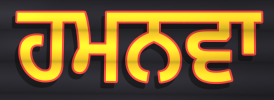
ਹਮਨਵਾ